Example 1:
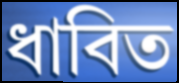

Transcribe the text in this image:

ধাবিত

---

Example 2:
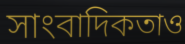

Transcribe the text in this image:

সাংবাদিকতাও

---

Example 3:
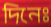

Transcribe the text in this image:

দিনেঃ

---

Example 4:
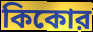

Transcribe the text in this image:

কিকোর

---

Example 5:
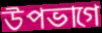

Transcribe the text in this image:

উপভাগে